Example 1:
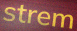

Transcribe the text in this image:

strem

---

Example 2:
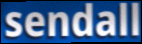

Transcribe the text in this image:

sendall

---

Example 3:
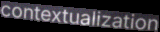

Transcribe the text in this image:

contextualization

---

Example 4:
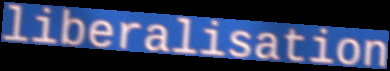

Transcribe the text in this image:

liberalisation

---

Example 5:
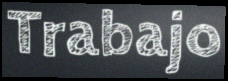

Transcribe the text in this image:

Trabajo